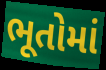
ભૂતોમાં